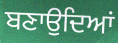
ਬਣਾਉਦਿਆਂ